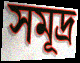
সমূদ্র